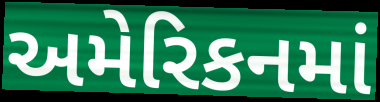
અમેરિકનમાં